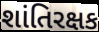
શાંતિરક્ષક